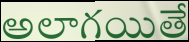
అలాగయితే